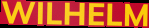
WILHELM